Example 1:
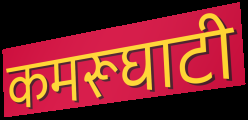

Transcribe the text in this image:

कमरूघाटी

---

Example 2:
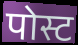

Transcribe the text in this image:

पोस्‍ट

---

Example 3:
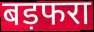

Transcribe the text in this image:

बड़फरा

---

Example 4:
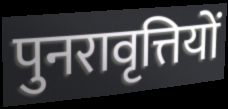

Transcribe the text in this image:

पुनरावृत्तियों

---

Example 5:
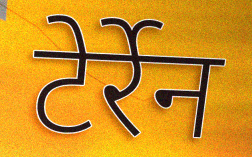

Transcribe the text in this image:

टेर्रेन